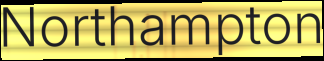
Northampton